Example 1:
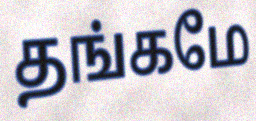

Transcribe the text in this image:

தங்கமே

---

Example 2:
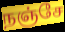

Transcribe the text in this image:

நஞ்சே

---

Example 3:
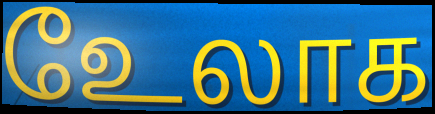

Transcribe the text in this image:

உேலாக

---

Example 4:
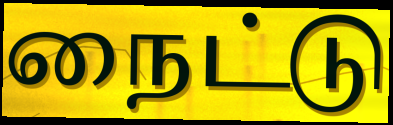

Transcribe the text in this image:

நைட்டு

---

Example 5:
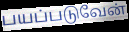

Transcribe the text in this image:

பயப்படுவேன்